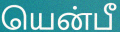
யென்பீ